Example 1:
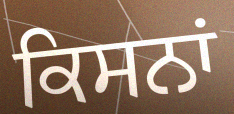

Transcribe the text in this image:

ਕਿਸਨਾਂ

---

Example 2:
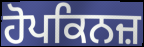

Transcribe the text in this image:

ਹੋਪਕਿਨਜ਼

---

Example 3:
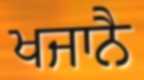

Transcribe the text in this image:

ਖਜਾਨੈ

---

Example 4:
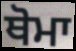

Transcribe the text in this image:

ਥੋਮਾ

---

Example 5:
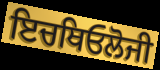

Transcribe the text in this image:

ਇਚਥਿਓਲੋਜੀ